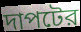
দাপটের